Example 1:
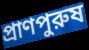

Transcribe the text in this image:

প্রাণপুরুষ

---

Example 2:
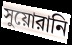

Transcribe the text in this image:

সুয়োরানি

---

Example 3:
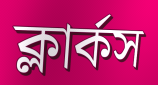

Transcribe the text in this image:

ক্লার্কস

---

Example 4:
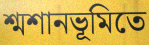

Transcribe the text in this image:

শ্মশানভূমিতে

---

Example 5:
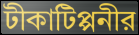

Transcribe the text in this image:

টীকাটিপ্পনীর